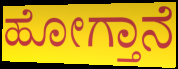
ಹೋಗ್ತಾನೆ